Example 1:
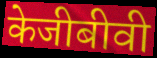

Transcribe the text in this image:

केजीबीवी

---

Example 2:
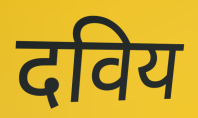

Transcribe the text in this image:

दविय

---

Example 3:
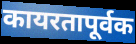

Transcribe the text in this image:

कायरतापूर्वक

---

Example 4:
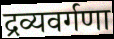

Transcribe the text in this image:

द्रव्यवर्गणा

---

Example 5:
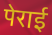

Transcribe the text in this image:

पेराई